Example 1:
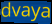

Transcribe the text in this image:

dvaya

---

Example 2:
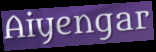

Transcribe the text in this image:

Aiyengar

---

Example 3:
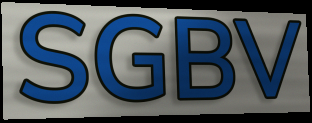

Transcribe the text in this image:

SGBV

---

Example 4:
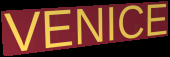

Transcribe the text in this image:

VENICE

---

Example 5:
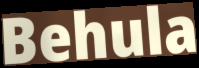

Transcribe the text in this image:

Behula